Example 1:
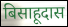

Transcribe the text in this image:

बिसाहूदास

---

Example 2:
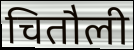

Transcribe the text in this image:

चितौली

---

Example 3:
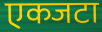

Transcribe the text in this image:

एकजटा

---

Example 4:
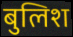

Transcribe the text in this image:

बुलिश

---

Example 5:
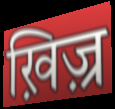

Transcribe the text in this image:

ख़िज़्र